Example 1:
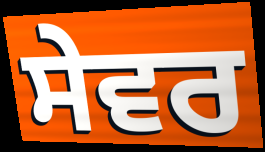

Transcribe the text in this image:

ਸੇਵਰ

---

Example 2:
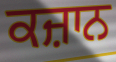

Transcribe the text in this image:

ਕਜ਼ਾਨ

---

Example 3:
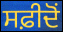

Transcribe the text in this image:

ਸਫ਼ੀਦੋਂ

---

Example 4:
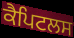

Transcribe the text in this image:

ਕੈਪਿਟਲਸ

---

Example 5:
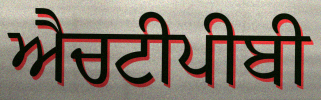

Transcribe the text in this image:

ਐਚਟੀਪੀਬੀ